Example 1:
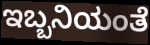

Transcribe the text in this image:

ಇಬ್ಬನಿಯಂತೆ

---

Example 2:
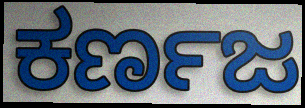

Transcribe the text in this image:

ಕರ್ಣಜ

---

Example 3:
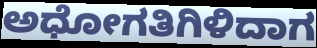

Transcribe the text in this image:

ಅಧೋಗತಿಗಿಳಿದಾಗ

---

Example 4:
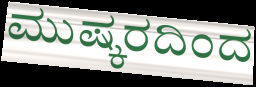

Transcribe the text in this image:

ಮುಷ್ಕರದಿಂದ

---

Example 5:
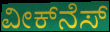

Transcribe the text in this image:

ವೀಕ್‌ನೆಸ್